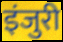
इंजुरी